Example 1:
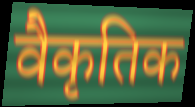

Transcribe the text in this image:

वैकृतिक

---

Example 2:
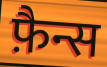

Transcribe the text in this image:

फ़ैन्स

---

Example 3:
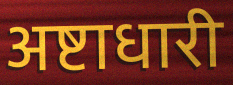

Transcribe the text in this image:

अष्टाधारी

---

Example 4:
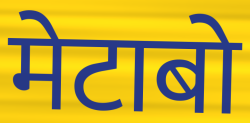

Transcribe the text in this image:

मेटाबो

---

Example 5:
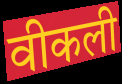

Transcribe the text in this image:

वीकली